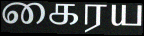
கைரய